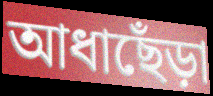
আধাছেঁড়া